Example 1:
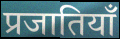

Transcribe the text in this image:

प्रजातियाँ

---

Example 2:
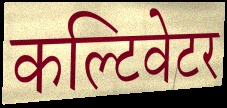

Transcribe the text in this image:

कल्टिवेटर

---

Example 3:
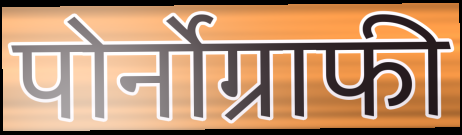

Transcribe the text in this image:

पोर्नोग्राफी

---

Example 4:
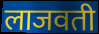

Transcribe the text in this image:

लाजवती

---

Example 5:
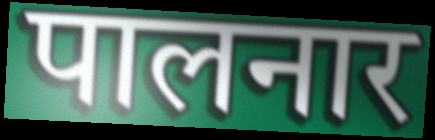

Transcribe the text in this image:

पालनार